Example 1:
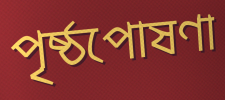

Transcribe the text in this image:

পৃষ্ঠপোষণা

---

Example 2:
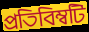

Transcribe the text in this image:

প্রতিবিম্বটি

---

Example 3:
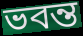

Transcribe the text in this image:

ভবন্ত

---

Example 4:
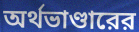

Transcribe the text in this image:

অর্থভাণ্ডারের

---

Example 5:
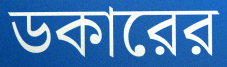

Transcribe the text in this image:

ডকারের